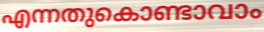
എന്നതുകൊണ്ടാവാം